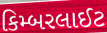
કિમ્બરલાઈટ